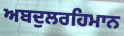
ਅਬਦੁਲਰਹਿਮਾਨ